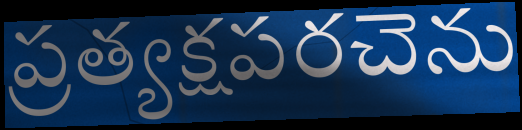
ప్రత్యక్షపరచెను